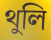
থুলি